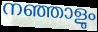
നഞ്ഞാളും